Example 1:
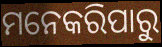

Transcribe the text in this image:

ମନେକରିପାରୁ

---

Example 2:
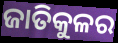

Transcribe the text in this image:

ଜାତିକୁଳର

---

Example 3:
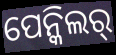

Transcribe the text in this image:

ପେନ୍କିଲର୍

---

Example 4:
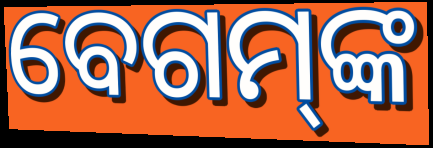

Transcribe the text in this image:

ବେଗମ୍‌ଙ୍କ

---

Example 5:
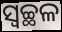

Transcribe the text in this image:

ସ୍ବଚ୍ଛଳ